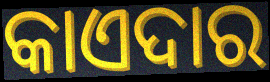
କାଏଦାର